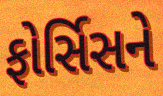
ફોર્સિસને